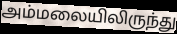
அம்மலையிலிருந்து